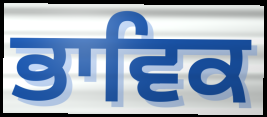
ਭਾਵਿਕ